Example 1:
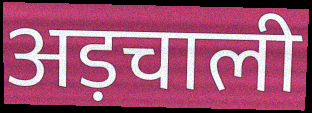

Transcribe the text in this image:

अड़चाली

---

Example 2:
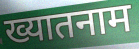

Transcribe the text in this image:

ख्यातनाम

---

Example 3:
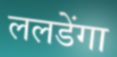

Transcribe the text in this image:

ललडेंगा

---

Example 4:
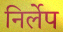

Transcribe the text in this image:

निर्लेप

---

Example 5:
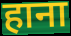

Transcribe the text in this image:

हाना